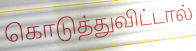
கொடுத்துவிட்டால்